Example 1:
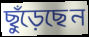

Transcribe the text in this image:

ছুঁড়েছেন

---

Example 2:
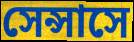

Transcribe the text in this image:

সেন্সাসে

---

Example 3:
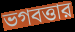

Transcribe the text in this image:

ভগবত্তার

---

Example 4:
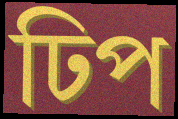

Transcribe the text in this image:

ঢিপ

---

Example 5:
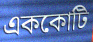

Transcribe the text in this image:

এককোটি